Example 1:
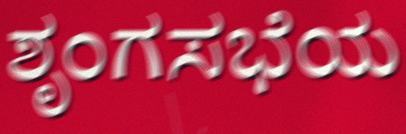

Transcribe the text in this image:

ಶೃಂಗಸಭೆಯ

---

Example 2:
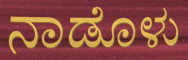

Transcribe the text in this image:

ನಾಡೊಳು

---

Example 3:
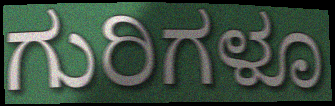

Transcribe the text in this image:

ಗುರಿಗಳೂ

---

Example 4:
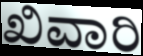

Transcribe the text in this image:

ಖಿವಾರಿ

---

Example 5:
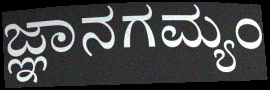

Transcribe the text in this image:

ಜ್ಞಾನಗಮ್ಯಂ